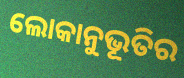
ଲୋକାନୁଭୂତିର